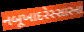
નબૂખાદરેસ્સારના